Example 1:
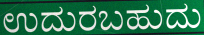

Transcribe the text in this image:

ಉದುರಬಹುದು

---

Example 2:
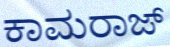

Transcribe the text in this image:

ಕಾಮರಾಜ್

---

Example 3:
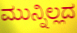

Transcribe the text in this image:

ಮುನ್ನಿಲ್ಲದ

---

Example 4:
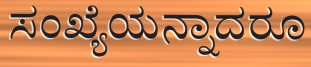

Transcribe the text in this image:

ಸಂಖ್ಯೆಯನ್ನಾದರೂ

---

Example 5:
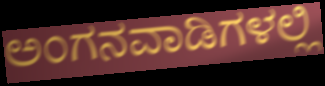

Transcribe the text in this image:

ಅಂಗನವಾಡಿಗಳಲ್ಲಿ